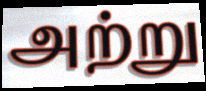
அற்று